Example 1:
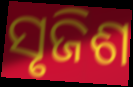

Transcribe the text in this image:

ସୃଜିଶ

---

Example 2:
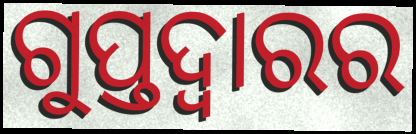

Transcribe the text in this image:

ଗୁପ୍ତଦ୍ୱାରର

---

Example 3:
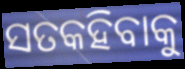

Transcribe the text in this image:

ସତକହିବାକୁ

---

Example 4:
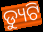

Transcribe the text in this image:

ଡ୍ୟୁଟି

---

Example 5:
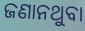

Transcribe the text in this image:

ଜଣାନଥୁବା